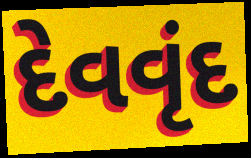
દેવવૃંદ